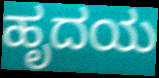
ಹೃದಯ